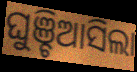
ଘୁଞ୍ଚିଆସିଲା